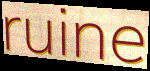
ruine